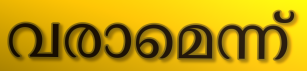
വരാമെന്ന്